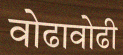
वोढावोढी